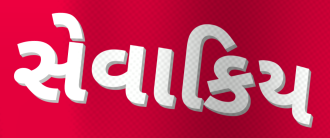
સેવાકિય